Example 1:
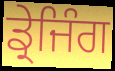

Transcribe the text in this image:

ਡ੍ਰੇਜਿੰਗ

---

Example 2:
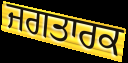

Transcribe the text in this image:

ਜਗਤਾਰਕ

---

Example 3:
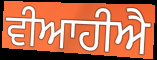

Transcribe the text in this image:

ਵੀਆਹੀਐ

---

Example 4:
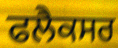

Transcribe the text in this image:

ਫਲੈਕਸਰ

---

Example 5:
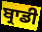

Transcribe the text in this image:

ਬ੍ਰਾਡੀ